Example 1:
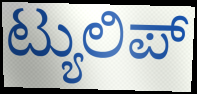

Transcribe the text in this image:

ಟ್ಯುಲಿಪ್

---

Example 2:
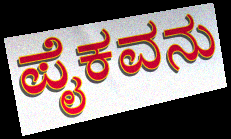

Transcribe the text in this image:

ಪೈಕವನು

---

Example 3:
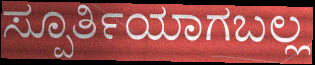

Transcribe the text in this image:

ಸ್ಪೂರ್ತಿಯಾಗಬಲ್ಲ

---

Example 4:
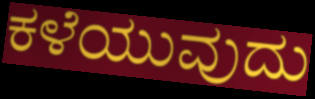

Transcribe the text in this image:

ಕಳೆಯುವುದು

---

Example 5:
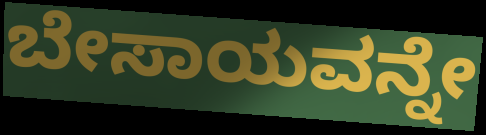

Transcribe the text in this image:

ಬೇಸಾಯವನ್ನೇ